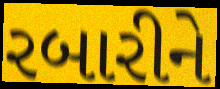
રબારીને